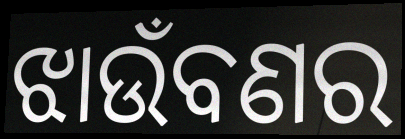
ଝାଉଁବଣର